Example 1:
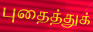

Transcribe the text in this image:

புதைத்துக்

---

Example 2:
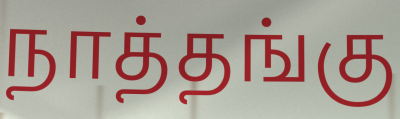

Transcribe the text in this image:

நாத்தங்கு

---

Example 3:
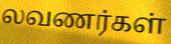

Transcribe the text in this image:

லவணர்கள்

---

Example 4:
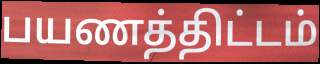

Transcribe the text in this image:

பயணத்திட்டம்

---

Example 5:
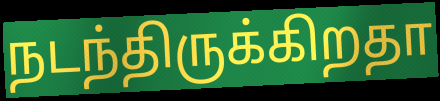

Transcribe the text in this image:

நடந்திருக்கிறதா